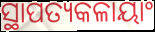
ସ୍ଥାପତ୍ୟକଳାୟାଂ